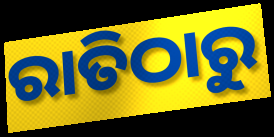
ରାତିଠାରୁ